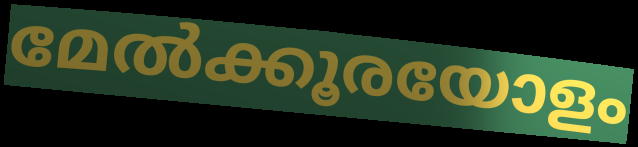
മേൽക്കൂരയോളം